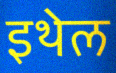
इथेल